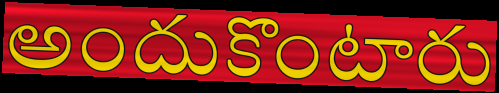
అందుకొంటారు